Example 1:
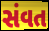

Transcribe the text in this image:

સંવત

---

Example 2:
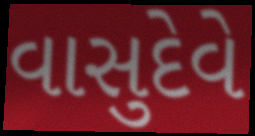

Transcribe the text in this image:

વાસુદેવે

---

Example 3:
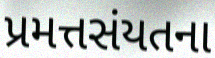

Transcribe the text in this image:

પ્રમત્તસંયતના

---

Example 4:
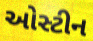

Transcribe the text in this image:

ઓસ્ટીન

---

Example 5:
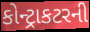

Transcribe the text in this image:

કોન્ટ્રાકટરની